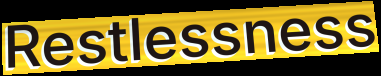
Restlessness